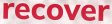
recover